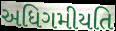
અધિગમીયતિ